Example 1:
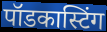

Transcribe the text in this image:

पॉडकास्टिंग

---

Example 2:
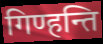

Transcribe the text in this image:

गिण्हन्ति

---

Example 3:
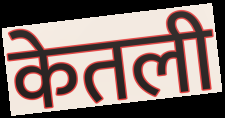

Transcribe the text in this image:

केतली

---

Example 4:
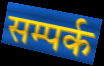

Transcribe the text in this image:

सम्‍पर्क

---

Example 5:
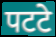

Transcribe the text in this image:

पटटे